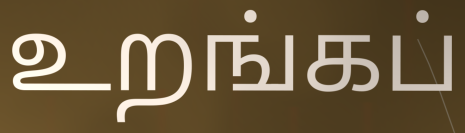
உறங்கப்